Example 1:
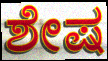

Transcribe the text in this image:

ಶೇಷ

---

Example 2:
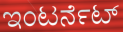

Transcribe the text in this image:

ಇಂಟರ್ನೆಟ್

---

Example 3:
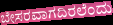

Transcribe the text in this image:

ಬೇಸರವಾಗದಿರಲೆಂದು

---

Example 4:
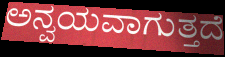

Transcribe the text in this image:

ಅನ್ವಯವಾಗುತ್ತದೆ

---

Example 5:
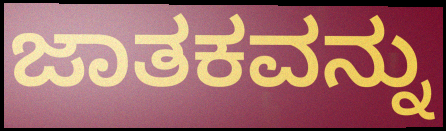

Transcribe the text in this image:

ಜಾತಕವನ್ನು